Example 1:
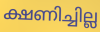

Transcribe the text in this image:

ക്ഷണിച്ചില്ല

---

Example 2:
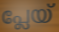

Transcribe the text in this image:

പ്ലേയ്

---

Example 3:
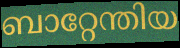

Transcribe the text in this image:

ബാറ്റേന്തിയ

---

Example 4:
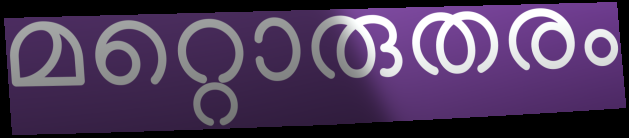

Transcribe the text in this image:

മറ്റൊരുതരം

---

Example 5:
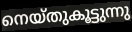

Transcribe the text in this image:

നെയ്തുകൂട്ടുന്നു